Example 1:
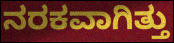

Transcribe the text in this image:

ನರಕವಾಗಿತ್ತು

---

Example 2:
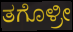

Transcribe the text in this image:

ತಗೊಳ್ರೀ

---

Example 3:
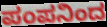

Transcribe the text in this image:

ಪಂಪನಿಂದ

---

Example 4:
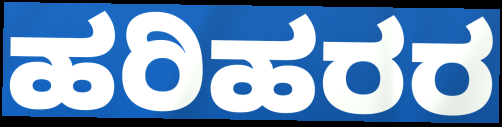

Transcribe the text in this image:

ಹರಿಹರರ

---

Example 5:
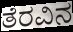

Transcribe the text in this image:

ತೆರವಿನ